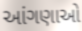
આંગણાઓ